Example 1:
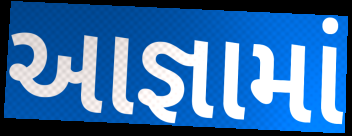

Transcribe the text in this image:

આજ્ઞામાં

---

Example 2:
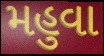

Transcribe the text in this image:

મહુવા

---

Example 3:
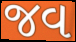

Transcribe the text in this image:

જવ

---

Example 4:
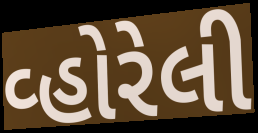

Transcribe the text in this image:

વ્હોરેલી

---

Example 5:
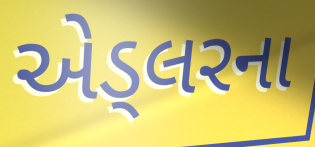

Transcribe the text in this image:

એડ્લરના